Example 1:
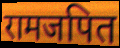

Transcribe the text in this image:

रामजपित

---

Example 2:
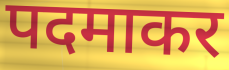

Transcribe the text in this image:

पदमाकर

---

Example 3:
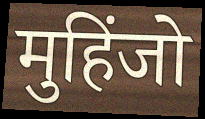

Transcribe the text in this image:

मुहिंजो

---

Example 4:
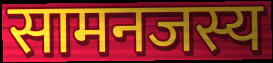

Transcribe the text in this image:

सामनजस्य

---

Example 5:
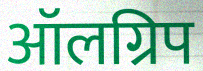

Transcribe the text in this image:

ऑलग्रिप